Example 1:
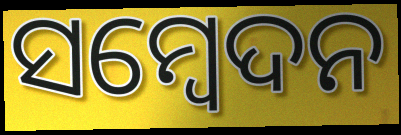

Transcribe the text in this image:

ସମ୍ଵେଦନ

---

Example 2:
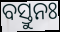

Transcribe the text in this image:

ବସ୍ତୁନଃ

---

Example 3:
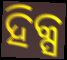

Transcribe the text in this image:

ହିକ୍ସ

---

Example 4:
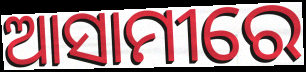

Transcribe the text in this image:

ଆସାମୀରେ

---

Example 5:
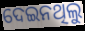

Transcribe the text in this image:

ଦେଇନଥିଲୁ